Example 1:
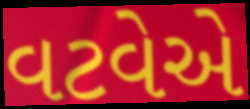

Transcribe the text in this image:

વટવેએ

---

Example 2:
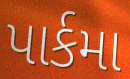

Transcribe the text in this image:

પાર્કમા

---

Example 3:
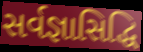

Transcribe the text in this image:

સર્વજ્ઞાસિદ્ધિ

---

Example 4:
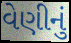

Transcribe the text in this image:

વેણીનું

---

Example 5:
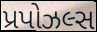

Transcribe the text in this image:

પ્રપોઝલ્સ